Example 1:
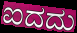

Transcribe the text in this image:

ಐದದು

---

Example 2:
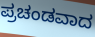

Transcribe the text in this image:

ಪ್ರಚಂಡವಾದ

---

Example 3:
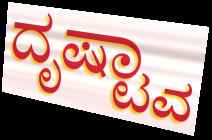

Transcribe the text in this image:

ದೃಷ್ಟ್ವಾ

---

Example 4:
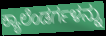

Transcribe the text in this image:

ಕ್ಯಾಲೆಂಡರ್ಗಳನ್ನು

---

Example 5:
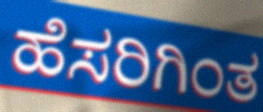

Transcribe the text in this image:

ಹೆಸರಿಗಿಂತ